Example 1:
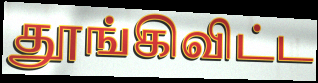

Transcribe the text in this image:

தூங்கிவிட்ட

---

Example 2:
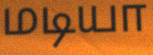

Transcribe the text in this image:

மடியா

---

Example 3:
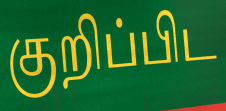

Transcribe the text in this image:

குறிப்பிட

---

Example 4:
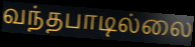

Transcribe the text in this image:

வந்தபாடில்லை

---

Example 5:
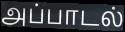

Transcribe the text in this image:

அப்பாடல்